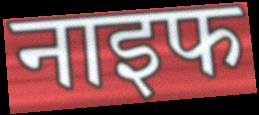
नाइफ